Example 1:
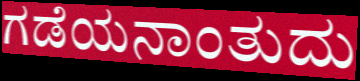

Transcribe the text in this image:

ಗಡೆಯನಾಂತುದು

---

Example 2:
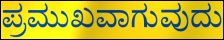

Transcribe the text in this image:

ಪ್ರಮುಖವಾಗುವುದು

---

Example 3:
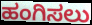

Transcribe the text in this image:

ಹಂಗಿಸಲು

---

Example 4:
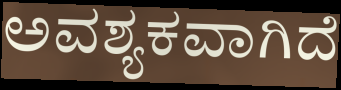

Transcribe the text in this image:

ಅವಶ್ಯಕವಾಗಿದೆ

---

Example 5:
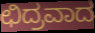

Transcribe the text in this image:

ಛಿದ್ರವಾದ